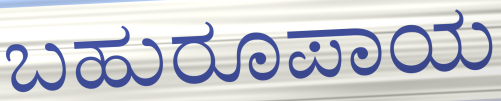
ಬಹುರೂಪಾಯ